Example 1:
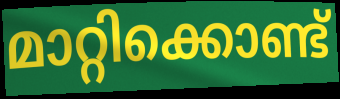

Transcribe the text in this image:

മാറ്റിക്കൊണ്ട്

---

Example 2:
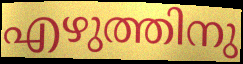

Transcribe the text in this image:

എഴുത്തിനു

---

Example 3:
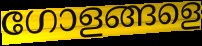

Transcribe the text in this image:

ഗോളങ്ങളെ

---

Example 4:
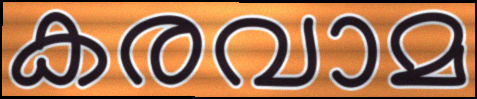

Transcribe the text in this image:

കരവാമ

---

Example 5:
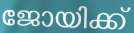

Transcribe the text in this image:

ജോയിക്ക്